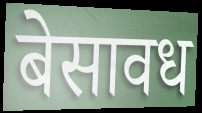
बेसावध